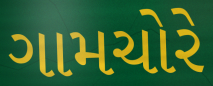
ગામચોરે